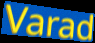
Varad